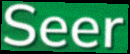
Seer